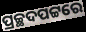
ପ୍ରଚ୍ଛଦପଟ୍ଟରେ